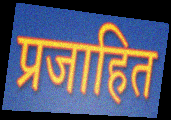
प्रजाहित